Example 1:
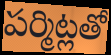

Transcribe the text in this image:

పర్మిట్లతో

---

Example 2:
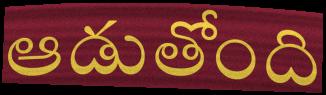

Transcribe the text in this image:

ఆడుతోంది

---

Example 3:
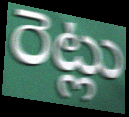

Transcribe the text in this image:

రెట్లు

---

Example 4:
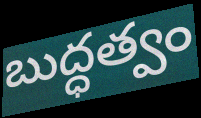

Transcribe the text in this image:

బుద్ధత్వం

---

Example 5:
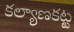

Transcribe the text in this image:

కల్యాణకట్ట